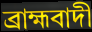
ব্ৰাহ্মবাদী